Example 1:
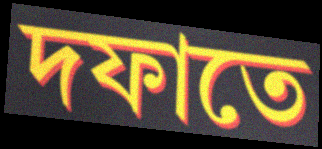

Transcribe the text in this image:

দফাতে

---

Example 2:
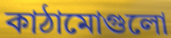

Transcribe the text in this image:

কাঠামোগুলো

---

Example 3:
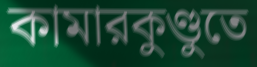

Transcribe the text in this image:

কামারকুণ্ডুতে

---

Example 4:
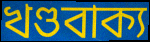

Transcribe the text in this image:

খণ্ডবাক্য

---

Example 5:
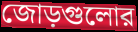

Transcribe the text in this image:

জোড়গুলোর